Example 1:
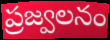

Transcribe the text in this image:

ప్రజ్వలనం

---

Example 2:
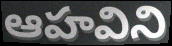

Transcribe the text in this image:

ఆహవిని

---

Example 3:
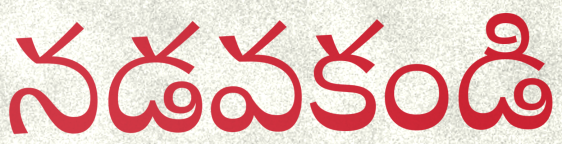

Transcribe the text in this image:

నడవకండి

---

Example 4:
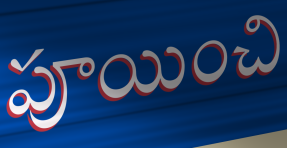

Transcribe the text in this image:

పూయించి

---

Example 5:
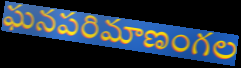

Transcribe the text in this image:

ఘనపరిమాణంగల